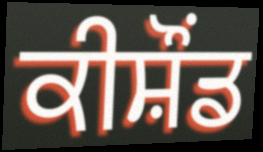
ਕੀਸ਼ੌਂਡ